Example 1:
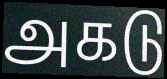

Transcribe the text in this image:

அகடு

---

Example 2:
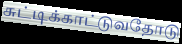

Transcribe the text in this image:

சுட்டிக்காட்டுவதோடு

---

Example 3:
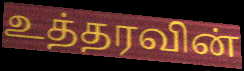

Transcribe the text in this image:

உத்தரவின்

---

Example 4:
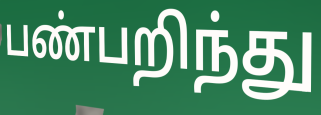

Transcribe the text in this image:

பண்பறிந்து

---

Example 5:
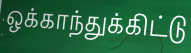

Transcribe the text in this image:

ஒக்காந்துக்கிட்டு